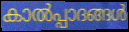
കാൽപ്പാദങ്ങൾ